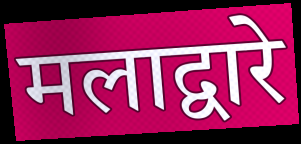
मलाद्वारे